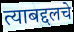
त्याबद्दलचे